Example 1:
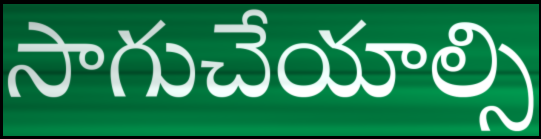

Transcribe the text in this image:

సాగుచేయాల్సి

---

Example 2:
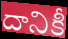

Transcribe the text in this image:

దానికీ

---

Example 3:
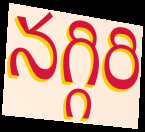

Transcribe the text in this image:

నగ్గిరి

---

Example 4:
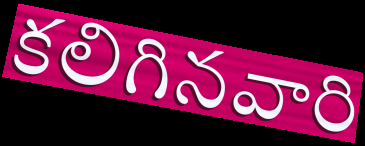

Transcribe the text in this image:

కలిగినవారి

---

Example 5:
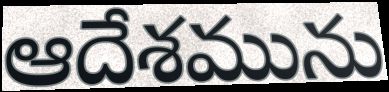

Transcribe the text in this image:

ఆదేశమును